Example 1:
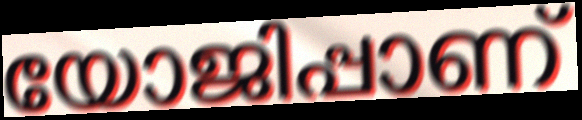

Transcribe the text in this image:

യോജിപ്പാണ്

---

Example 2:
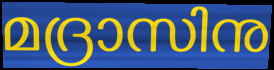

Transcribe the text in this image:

മദ്രാസിനു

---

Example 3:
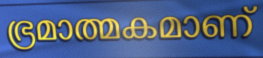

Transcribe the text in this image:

ഭ്രമാത്മകമാണ്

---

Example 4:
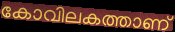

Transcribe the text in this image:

കോവിലകത്താണ്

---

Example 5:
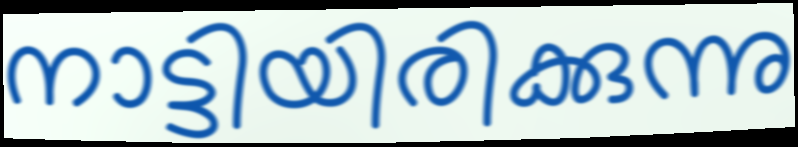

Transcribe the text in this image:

നാട്ടിയിരിക്കുന്നു